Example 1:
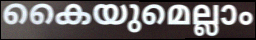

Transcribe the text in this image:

കൈയുമെല്ലാം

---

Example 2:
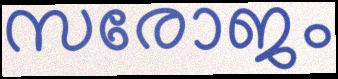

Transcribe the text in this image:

സരോജം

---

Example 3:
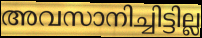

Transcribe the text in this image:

അവസാനിച്ചിട്ടില്ല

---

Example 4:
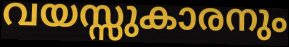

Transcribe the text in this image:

വയസ്സുകാരനും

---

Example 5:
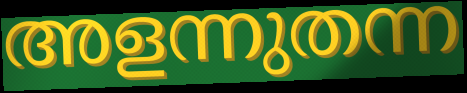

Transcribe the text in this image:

അളന്നുതന്ന